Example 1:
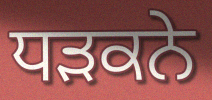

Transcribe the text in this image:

ਧਡ਼ਕਨੇ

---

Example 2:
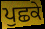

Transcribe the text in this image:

ਪੁਛਕੇ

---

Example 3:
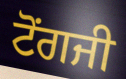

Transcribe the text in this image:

ਟੋਂਗਜੀ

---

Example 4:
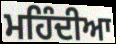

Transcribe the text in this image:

ਮਹਿੰਦੀਆ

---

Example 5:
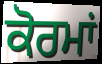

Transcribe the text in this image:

ਕੋਰਮਾਂ